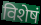
विशेषं